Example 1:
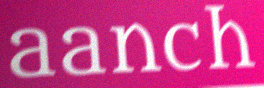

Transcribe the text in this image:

aanch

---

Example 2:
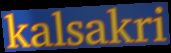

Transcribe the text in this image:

kalsakri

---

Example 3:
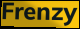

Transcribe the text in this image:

Frenzy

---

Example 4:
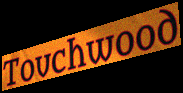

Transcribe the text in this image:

Touchwood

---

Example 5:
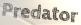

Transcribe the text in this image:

Predator